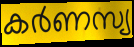
കർണസ്യ